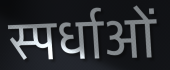
स्पर्धाओं